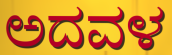
ಅದವಳ